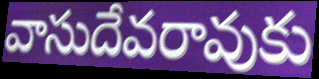
వాసుదేవరావుకు